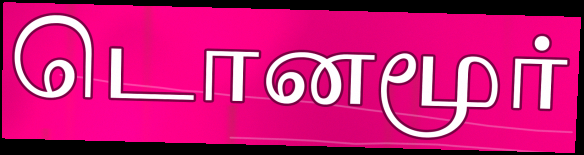
டொனமூர்